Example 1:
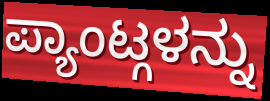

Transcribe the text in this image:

ಪ್ಯಾಂಟ್ಗಳನ್ನು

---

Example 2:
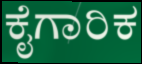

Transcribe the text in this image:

ಕೈಗಾರಿಕ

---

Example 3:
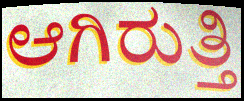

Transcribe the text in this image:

ಆಗಿರುತ್ತಿ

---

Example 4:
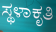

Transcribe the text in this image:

ಸ್ಥಳಾಕೃತಿ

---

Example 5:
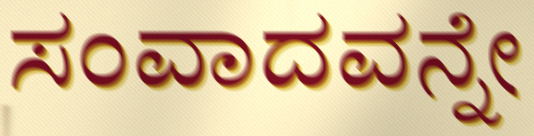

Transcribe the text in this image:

ಸಂವಾದವನ್ನೇ